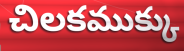
చిలకముక్కు